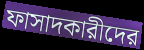
ফাসাদকারীদের